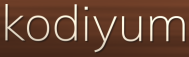
kodiyum